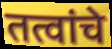
तत्वांचे